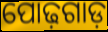
ପୋଢ଼ଗାଡ଼